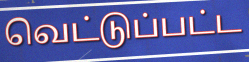
வெட்டுப்பட்ட